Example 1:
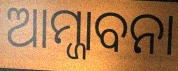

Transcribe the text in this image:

ଆମ୍ଜାବନା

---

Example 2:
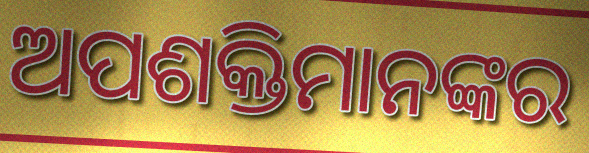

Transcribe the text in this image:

ଅପଶକ୍ତିମାନଙ୍କର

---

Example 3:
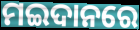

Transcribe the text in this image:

ମଇଦାନରେ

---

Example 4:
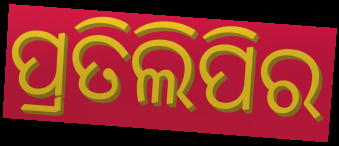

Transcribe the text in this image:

ପ୍ରତିଲିପିର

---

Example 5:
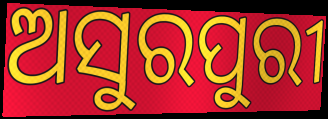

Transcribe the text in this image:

ଅସୁରପୁରୀ